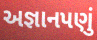
અજ્ઞાનપણું